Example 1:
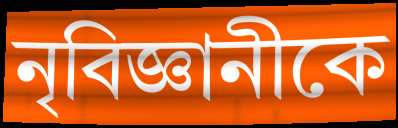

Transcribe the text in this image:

নৃবিজ্ঞানীকে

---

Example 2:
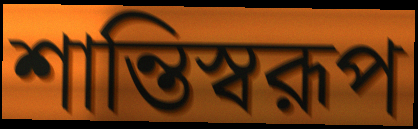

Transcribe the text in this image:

শান্তিস্বরূপ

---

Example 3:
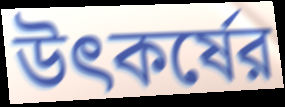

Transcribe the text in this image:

উৎকর্ষের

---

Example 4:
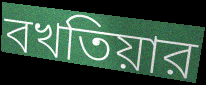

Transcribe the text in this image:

বখতিয়ার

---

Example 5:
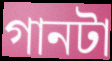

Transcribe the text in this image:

গানটা